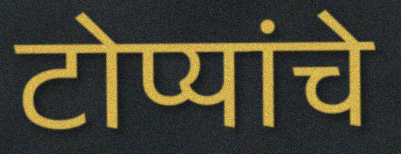
टोप्यांचे